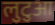
लुटुआ